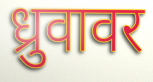
ध्रुवावर